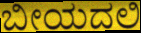
ಬೀಯದಲಿ